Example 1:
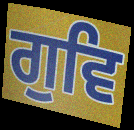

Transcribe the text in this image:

ਗੁਵਿ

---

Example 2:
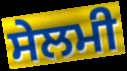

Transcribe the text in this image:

ਸੇਲਮੀ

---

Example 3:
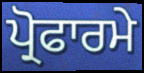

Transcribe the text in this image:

ਪ੍ਰੋਫਾਰਮੇ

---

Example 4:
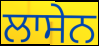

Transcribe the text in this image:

ਲਾਸੇਨ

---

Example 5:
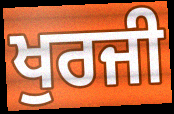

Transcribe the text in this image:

ਖੁਰਜੀ